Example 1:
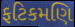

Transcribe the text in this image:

ફટિકમણિ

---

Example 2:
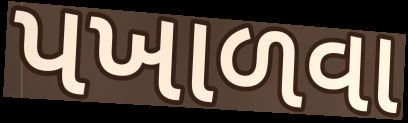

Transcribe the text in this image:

પખાળવા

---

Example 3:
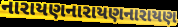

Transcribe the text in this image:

નારાયણનારાયણનારાયણ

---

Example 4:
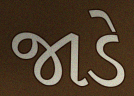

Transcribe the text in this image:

જાડે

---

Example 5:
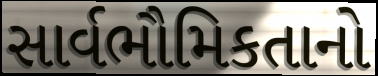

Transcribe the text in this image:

સાર્વભૌમિકતાનો